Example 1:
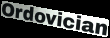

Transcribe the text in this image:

Ordovician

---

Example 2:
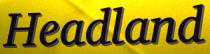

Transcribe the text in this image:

Headland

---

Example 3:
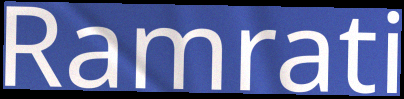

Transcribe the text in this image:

Ramrati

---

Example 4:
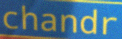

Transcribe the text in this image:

chandr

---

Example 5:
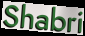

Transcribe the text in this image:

Shabri